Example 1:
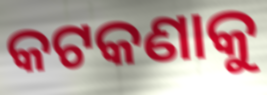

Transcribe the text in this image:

କଟକଣାକୁ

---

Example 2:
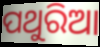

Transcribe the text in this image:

ପଥୁରିଆ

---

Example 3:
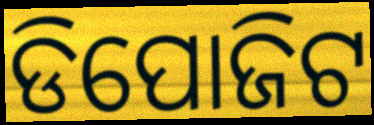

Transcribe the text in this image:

ଡିପୋଜିଟ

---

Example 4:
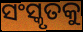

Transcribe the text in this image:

ସଂସ୍କୃତକୁ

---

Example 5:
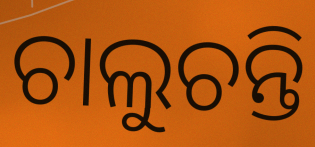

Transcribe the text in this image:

ଚାଲୁଚନ୍ତି